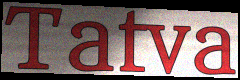
Tatva